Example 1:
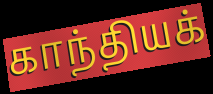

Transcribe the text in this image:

காந்தியக்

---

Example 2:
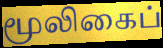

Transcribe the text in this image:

மூலிகைப்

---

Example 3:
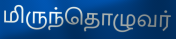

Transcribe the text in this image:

மிருந்தொழுவர்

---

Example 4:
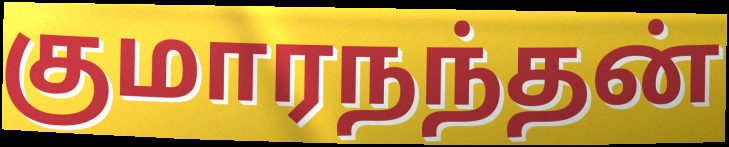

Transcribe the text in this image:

குமாரநந்தன்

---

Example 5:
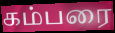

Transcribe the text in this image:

கம்பரை